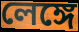
লেঙ্গে